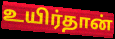
உயிர்தான்